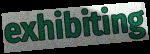
exhibiting